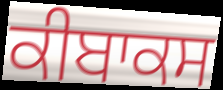
ਕੀਬਾਕਸ